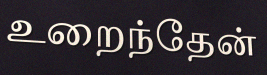
உறைந்தேன்